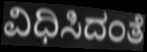
ವಿಧಿಸಿದಂತೆ